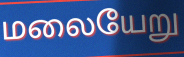
மலையேறு